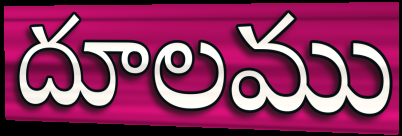
దూలము